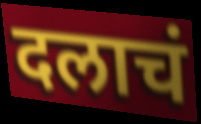
दलाचं